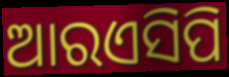
ଆରଏସିପି